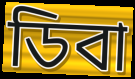
ডিবা